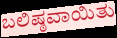
ಬಲಿಷ್ಠವಾಯಿತು